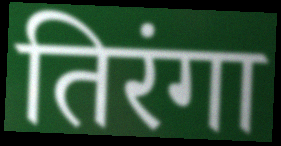
तिरंगा